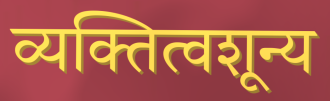
व्यक्तित्वशून्य